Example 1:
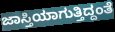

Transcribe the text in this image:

ಜಾಸ್ತಿಯಾಗುತ್ತಿದ್ದಂತೆ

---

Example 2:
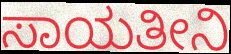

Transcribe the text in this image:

ಸಾಯತೀನಿ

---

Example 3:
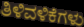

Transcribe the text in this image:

ತಿಳಿವಳಿಕೆಗಳು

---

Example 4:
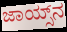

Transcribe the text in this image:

ಜಾಯ್ಸ್‌ನ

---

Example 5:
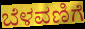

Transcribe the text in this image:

ಬೆಳವಣಿಗೆ